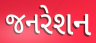
જનરેશન